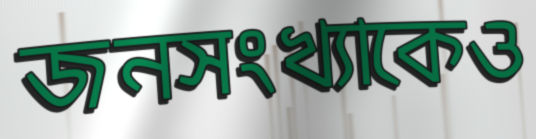
জনসংখ্যাকেও